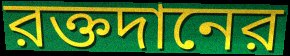
রক্তদানের